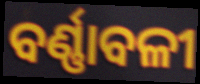
ବର୍ଣ୍ଣାବଳୀ